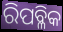
ରିପବ୍ଳିକ